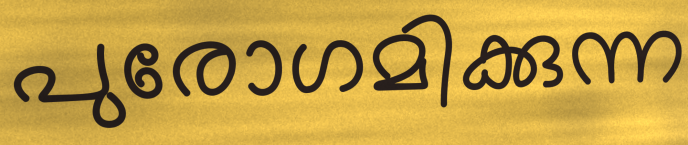
പുരോഗമിക്കുന്ന